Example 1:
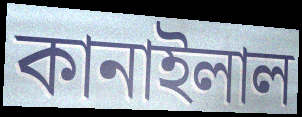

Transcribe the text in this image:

কানাইলাল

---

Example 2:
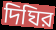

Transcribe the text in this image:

দিঘির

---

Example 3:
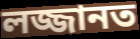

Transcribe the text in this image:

লজ্জানত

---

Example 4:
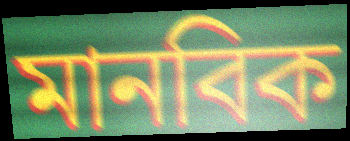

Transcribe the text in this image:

মানবিক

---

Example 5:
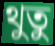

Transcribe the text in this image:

থুতু